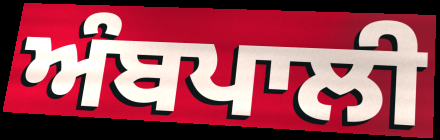
ਅੰਬਪਾਲੀ